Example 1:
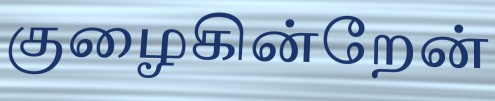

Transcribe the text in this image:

குழைகின்றேன்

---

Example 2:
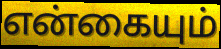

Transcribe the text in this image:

என்கையும்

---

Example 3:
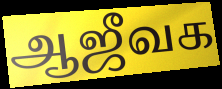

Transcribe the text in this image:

ஆஜீவக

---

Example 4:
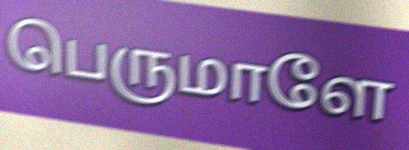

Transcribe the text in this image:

பெருமாளே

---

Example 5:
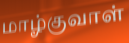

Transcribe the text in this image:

மாழ்குவாள்